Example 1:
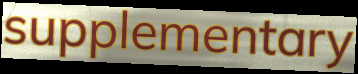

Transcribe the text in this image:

supplementary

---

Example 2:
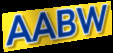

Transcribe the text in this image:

AABW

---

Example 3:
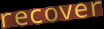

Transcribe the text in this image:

recover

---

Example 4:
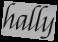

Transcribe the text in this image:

hally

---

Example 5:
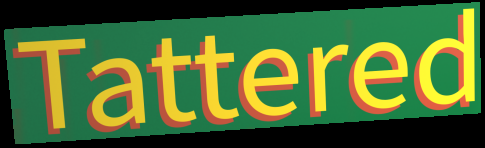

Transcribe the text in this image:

Tattered